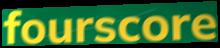
fourscore